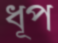
ধূপ